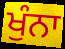
ਖੁੰਨਾ